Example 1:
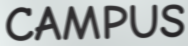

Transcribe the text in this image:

CAMPUS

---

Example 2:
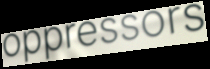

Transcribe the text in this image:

oppressors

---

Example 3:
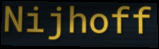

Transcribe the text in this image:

Nijhoff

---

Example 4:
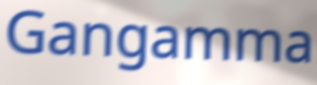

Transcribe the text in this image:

Gangamma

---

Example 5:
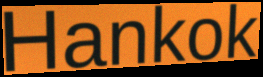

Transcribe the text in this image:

Hankok